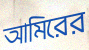
আমিরের